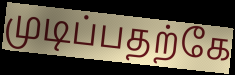
முடிப்பதற்கே